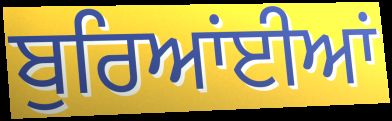
ਬੁਰਿਆਂਈਆਂ